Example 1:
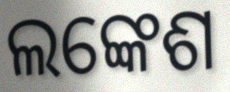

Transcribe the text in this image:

ଲଙ୍କେଶ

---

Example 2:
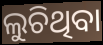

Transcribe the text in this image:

ଲୁଚିଥିବା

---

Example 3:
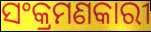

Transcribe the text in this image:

ସଂକ୍ରମଣକାରୀ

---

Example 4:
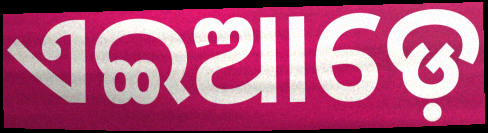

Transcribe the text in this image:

ଏଇଆଡ଼େ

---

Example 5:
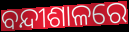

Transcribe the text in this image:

ବନ୍ଦୀଶାଳରେ